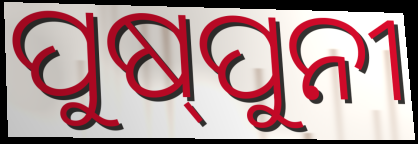
ପୁଷ୍‌ପୁନୀ